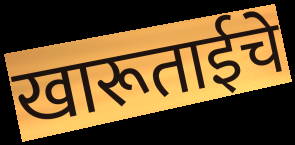
खारूताईचे